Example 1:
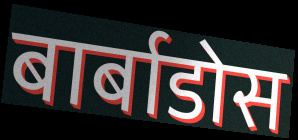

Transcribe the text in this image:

बार्बाडोस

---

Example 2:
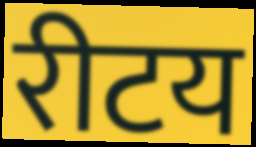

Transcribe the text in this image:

रीटय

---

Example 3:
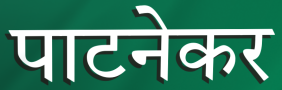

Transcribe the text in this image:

पाटनेकर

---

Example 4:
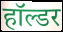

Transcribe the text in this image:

हॉल्डर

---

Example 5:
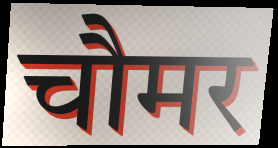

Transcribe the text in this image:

चौमर